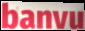
banvu